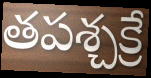
తపశ్చక్రే